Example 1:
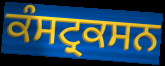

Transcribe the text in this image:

ਕੰਸਟ੍ਰਕਸਨ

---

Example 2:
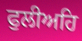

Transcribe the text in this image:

ਫੁਲੀਅਹਿ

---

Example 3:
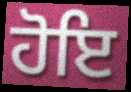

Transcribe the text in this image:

ਹੋਇ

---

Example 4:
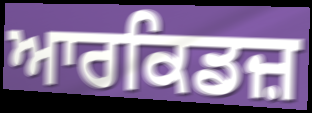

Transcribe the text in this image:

ਆਰਕਿਡਜ਼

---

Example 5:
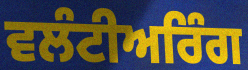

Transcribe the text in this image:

ਵਲੰਟੀਅਰਿੰਗ